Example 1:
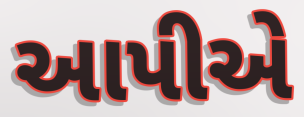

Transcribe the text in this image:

આપીએ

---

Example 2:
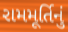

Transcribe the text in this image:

રામમૂર્તિનું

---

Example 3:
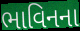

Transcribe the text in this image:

ભાવિનના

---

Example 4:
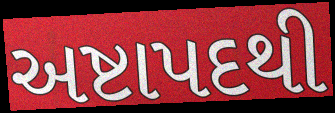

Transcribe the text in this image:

અષ્ટાપદથી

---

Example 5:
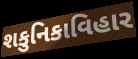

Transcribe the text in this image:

શકુનિકાવિહાર